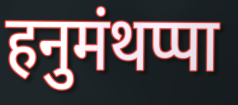
हनुमंथप्पा